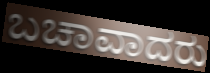
ಬಚಾವಾದರು